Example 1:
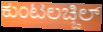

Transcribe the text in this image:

ಕುಂಟಲಚ್ಚಿಲ್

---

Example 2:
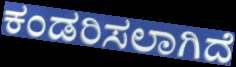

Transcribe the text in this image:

ಕಂಡರಿಸಲಾಗಿದೆ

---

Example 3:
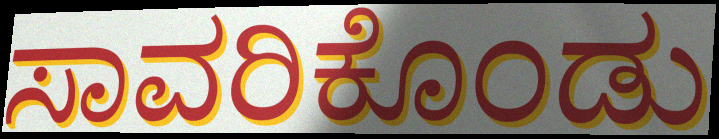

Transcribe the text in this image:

ಸಾವರಿಕೊಂಡು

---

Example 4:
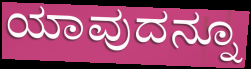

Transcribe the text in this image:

ಯಾವುದನ್ನೂ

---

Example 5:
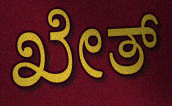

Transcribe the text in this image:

ಖೇತ್